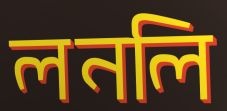
লনলি